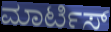
ಮಾರ್ಟಿಸ್